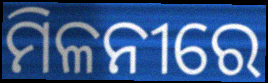
ମିଳନୀରେ